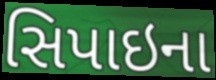
સિપાઇના